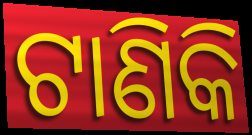
ଟାଣିକି